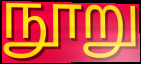
நூறு